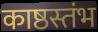
काष्ठस्तंभ